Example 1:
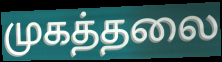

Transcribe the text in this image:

முகத்தலை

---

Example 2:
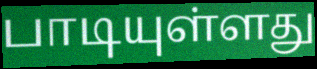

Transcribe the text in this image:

பாடியுள்ளது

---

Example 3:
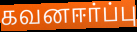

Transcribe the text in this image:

கவனஈர்ப்பு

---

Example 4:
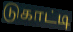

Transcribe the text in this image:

டுகாட்டி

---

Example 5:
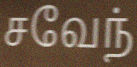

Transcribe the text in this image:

சவேந்